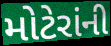
મોટેરાંની